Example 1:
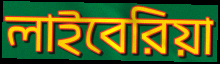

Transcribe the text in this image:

লাইবেরিয়া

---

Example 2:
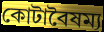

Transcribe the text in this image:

কোটাবৈষম্য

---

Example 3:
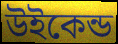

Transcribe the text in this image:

উইকেন্ড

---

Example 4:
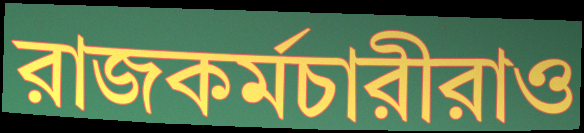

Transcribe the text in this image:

রাজকর্মচারীরাও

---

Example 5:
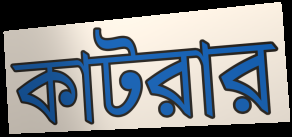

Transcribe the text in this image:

কাটরার